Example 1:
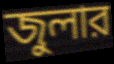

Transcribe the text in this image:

জুলার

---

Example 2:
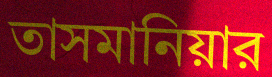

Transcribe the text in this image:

তাসমানিয়ার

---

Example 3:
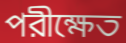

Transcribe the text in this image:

পরীক্ষেত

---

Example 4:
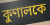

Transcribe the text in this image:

কুণালকে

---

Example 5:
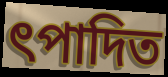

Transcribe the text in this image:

ৎপাদিত